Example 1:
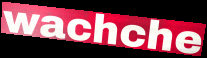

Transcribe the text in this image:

wachche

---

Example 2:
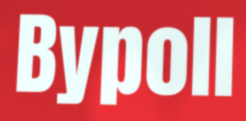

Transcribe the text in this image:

Bypoll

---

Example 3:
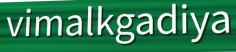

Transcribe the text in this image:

vimalkgadiya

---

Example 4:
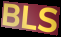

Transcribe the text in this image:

BLS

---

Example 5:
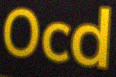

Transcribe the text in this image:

Ocd